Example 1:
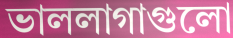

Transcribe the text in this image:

ভাললাগাগুলো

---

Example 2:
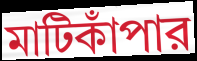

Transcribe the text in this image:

মাটিকাঁপার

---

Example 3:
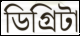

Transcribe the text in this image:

ডিগ্রিটা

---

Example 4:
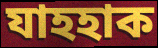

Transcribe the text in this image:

যাহহাক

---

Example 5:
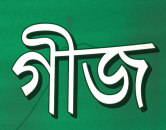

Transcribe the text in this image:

গীজ